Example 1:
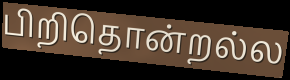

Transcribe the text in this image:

பிறிதொன்றல்ல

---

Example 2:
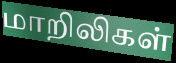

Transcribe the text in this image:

மாறிலிகள்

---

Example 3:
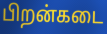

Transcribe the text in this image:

பிறன்கடை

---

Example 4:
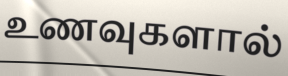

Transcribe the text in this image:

உணவுகளால்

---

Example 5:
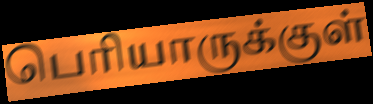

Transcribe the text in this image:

பெரியாருக்குள்